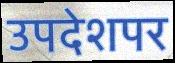
उपदेशपर